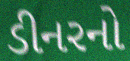
ડીનરનો